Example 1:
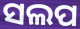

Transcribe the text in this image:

ସଲପ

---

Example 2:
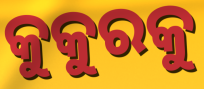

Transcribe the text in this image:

କୁକୁରକୁ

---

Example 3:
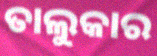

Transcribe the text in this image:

ତାଲୁକାର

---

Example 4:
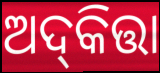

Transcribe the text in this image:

ଅଦ୍‌କିତ୍ତା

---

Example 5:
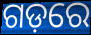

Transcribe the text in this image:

ଗଡ଼ରେ